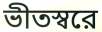
ভীতস্বরে